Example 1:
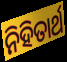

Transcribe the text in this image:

ନିହିତାର୍ଥ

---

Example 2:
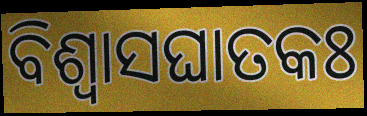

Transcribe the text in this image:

ବିଶ୍ୱାସଘାତକଃ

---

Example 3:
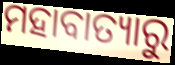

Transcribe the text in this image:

ମହାବାତ୍ୟାରୁ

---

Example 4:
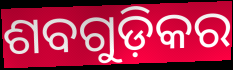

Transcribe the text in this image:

ଶବଗୁଡ଼ିକର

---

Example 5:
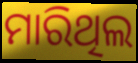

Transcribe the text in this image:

ମାରିଥିଲ